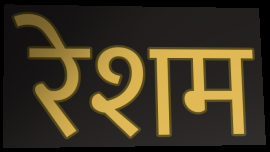
रेशम